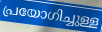
പ്രയോഗിച്ചുള്ള